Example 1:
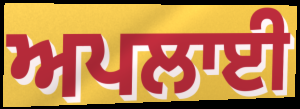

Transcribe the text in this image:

ਅਪਲਾਈ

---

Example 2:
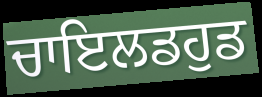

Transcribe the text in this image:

ਚਾਇਲਡਹੁਡ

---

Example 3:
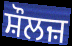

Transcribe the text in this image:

ਸ਼ੌਲਜ਼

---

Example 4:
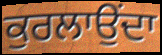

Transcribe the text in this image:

ਕੁਰਲਾਉਂਦਾ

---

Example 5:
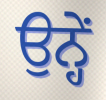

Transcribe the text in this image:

ਉਨ੍ਹੇਂ